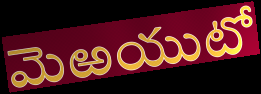
మెఱయుటో